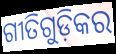
ଗୀତିଗୁଡ଼ିକର